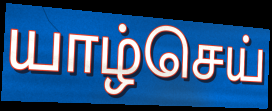
யாழ்செய்